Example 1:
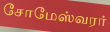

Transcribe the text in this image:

சோமேஸ்வரர்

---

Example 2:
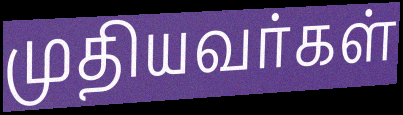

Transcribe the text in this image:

முதியவர்கள்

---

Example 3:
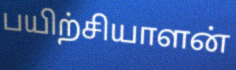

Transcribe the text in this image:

பயிற்சியாளன்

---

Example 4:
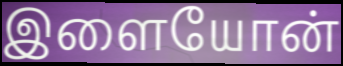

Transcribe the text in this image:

இளையோன்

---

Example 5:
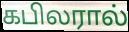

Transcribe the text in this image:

கபிலரால்